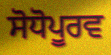
ਸੋਧੋਪੂਰਵ